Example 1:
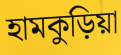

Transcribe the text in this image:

হামকুড়িয়া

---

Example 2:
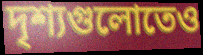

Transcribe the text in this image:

দৃশ্যগুলোতেও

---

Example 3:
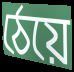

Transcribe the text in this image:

ঠেয়ে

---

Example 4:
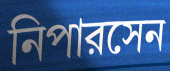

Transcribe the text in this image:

নিপারসেন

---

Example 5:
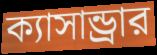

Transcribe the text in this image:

ক্যাসান্ড্রার